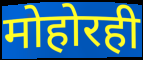
मोहोरही